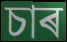
চাৰ